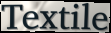
Textile